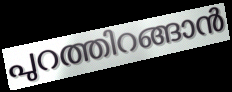
പുറത്തിറങ്ങാൻ